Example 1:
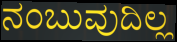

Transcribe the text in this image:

ನಂಬುವುದಿಲ್ಲ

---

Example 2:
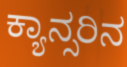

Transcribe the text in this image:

ಕ್ಯಾನ್ಸರಿನ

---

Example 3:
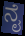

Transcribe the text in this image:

ನೈ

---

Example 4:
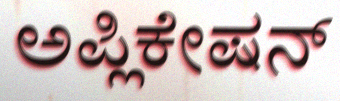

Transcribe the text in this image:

ಅಪ್ಲಿಕೇಷನ್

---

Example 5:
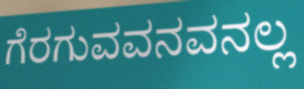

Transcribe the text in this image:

ಗೆರಗುವವನವನಲ್ಲ